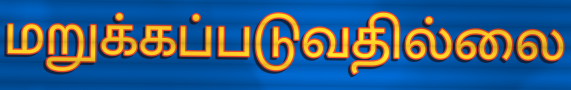
மறுக்கப்படுவதில்லை